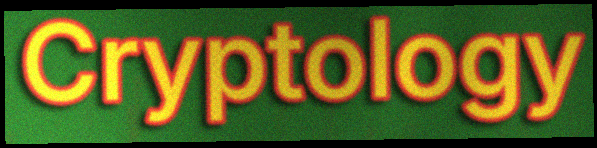
Cryptology